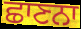
ਛਾਣਨਾ